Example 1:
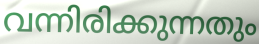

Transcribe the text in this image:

വന്നിരിക്കുന്നതും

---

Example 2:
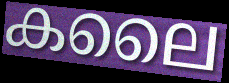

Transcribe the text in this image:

കലൈ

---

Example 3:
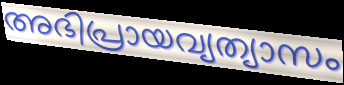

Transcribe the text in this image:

അഭിപ്രായവ്യത്യാസം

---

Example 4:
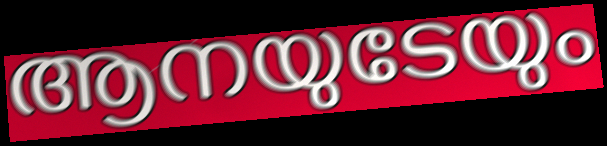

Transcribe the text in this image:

ആനയുടേയും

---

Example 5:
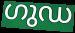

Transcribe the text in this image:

ഗുഡ